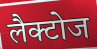
लैक्‍टोज